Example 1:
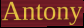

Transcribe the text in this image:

Antony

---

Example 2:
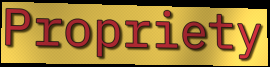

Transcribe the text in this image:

Propriety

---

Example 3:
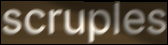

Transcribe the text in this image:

scruples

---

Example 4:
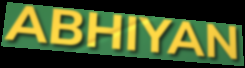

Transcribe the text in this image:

ABHIYAN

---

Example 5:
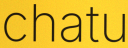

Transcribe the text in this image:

chatu